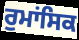
ਰੁਮਾਂਸਿਕ